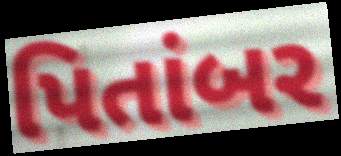
પિતાંબર